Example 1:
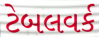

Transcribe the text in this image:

ટેબલવર્ક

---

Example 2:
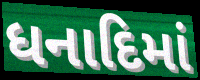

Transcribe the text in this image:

ધનાદિમાં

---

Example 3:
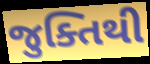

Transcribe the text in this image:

જુક્તિથી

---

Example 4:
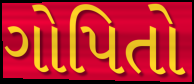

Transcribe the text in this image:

ગોપિતો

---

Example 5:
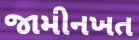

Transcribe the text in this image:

જામીનખત